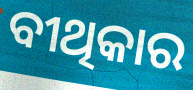
ବୀଥିକାର